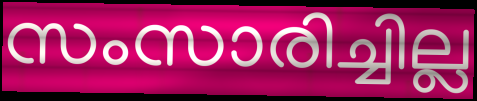
സംസാരിച്ചില്ല